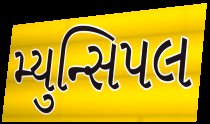
મ્યુન્સિપલ